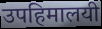
उपहिमालयी